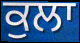
ਕੁਲਾ